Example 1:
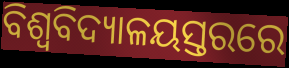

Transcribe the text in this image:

ବିଶ୍ୱବିଦ୍ୟାଳୟସ୍ତରରେ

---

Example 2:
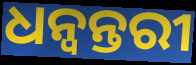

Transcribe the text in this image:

ଧନ୍ବନ୍ତରୀ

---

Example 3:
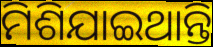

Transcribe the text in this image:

ମିଶିଯାଇଥାନ୍ତି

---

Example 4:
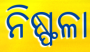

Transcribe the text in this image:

ନିଷ୍ଫଳା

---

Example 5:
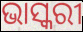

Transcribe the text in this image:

ଭାସ୍କରୀ